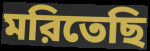
মরিতেছি